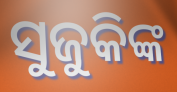
ସୁଜୁକିଙ୍କ